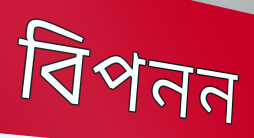
বিপনন